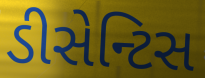
ડીસેન્ટિસ